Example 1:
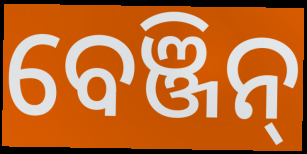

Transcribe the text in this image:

ବେଞ୍ଜିନ୍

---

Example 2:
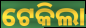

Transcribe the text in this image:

ଟେକିଲା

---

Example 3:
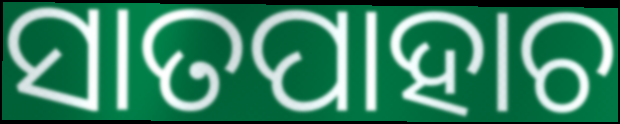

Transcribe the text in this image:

ସାତପାହାଚ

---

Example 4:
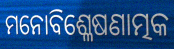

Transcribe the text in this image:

ମନୋବିଶ୍ଳେଷଣାତ୍ମକ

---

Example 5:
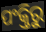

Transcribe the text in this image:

ପଂକ୍ତିରୁ